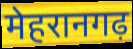
मेहरानगढ़